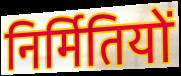
निर्मितियों